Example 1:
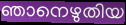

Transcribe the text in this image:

ഞാനെഴുതിയ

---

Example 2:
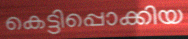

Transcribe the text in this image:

കെട്ടിപ്പൊക്കിയ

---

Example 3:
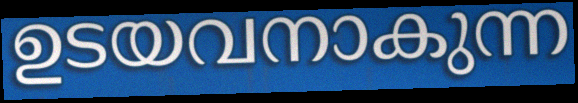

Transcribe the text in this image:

ഉടയവനാകുന്ന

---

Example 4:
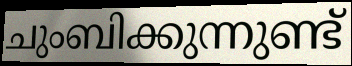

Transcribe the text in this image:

ചുംബിക്കുന്നുണ്ട്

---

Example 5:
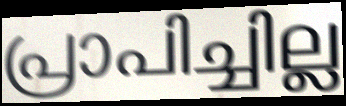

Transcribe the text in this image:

പ്രാപിച്ചില്ല